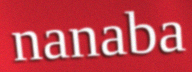
nanaba